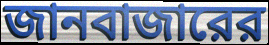
জানবাজারের